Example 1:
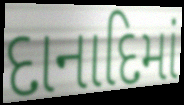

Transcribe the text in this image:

દાનાદિમાં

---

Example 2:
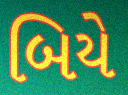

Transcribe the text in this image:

બિયે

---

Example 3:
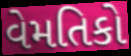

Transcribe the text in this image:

વેમતિકો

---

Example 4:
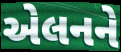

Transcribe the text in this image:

એલનને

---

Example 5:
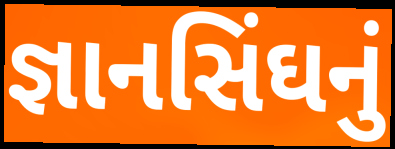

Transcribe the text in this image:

જ્ઞાનસિંઘનું